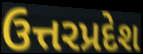
ઉત્તરપ્રદેશ